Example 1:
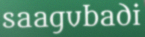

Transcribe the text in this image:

saagubadi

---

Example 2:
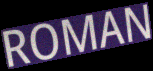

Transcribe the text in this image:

ROMAN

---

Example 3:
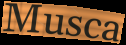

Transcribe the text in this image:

Musca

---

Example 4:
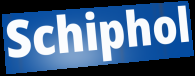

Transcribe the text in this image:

Schiphol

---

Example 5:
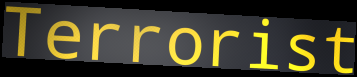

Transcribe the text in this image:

Terrorist